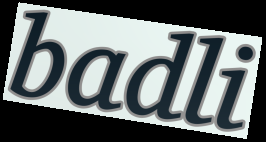
badli